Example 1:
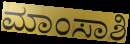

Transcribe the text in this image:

ಮಾಂಸಾಶಿ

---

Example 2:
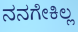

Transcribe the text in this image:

ನನಗೇಕಿಲ್ಲ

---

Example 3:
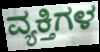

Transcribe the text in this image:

ವ್ಯಕ್ತಿಗಳ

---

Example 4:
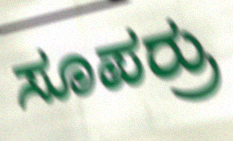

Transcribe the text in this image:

ಸೂಪರ್ರು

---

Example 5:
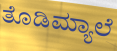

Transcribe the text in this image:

ತೊಡಿಮ್ಯಾಲೆ